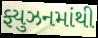
ફ્યુઝનમાંથી